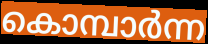
കൊമ്പാർന്ന